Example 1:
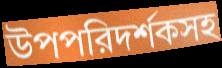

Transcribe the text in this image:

উপপরিদর্শকসহ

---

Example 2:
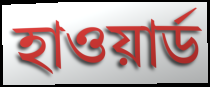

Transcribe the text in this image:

হাওয়ার্ড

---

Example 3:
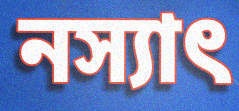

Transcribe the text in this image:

নস্যাৎ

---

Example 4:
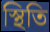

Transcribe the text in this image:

স্থিতি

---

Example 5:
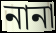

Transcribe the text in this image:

নানা